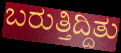
ಬರುತ್ತಿದ್ದಿತು